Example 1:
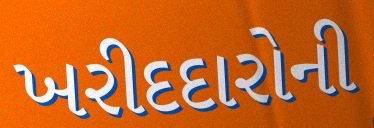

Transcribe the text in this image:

ખરીદદારોની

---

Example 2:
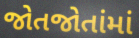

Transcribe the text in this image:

જોતજોતાંમાં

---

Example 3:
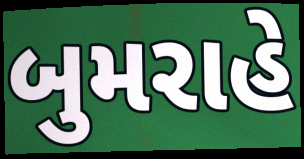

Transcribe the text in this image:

બુમરાહે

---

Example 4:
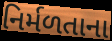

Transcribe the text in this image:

નિર્મળતાના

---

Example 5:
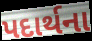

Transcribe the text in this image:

પદાર્થના